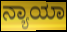
ನ್ಯಾಯಾ